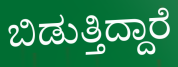
ಬಿಡುತ್ತಿದ್ದಾರೆ